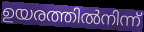
ഉയരത്തിൽനിന്ന്